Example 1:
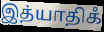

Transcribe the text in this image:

இத்யாதிகஂ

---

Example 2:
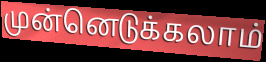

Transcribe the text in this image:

முன்னெடுக்கலாம்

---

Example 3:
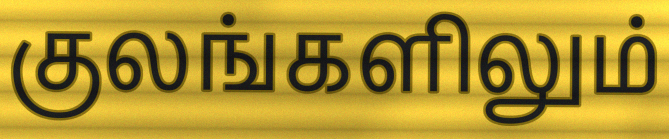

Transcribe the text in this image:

குலங்களிலும்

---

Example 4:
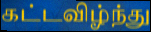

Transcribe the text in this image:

கட்டவிழ்ந்து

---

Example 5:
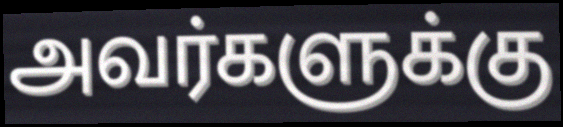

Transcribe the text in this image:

அவர்களுக்கு